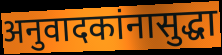
अनुवादकांनासुद्धा